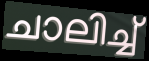
ചാലിച്ച്